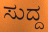
ಸುದ್ದ